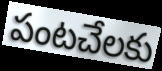
పంటచేలకు